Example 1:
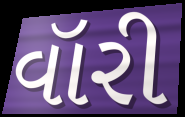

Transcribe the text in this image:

વૉરી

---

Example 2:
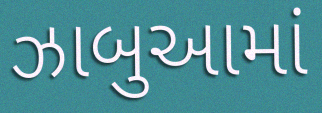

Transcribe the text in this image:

ઝાબુઆમાં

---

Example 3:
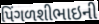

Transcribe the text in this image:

પિંગળશીભાઇની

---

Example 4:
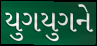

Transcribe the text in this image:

યુગયુગને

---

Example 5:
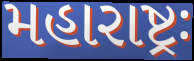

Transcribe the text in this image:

મહારાષ્ટ્રઃ